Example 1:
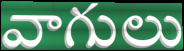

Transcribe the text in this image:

వాగులు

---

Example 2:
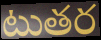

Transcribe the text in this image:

టుతర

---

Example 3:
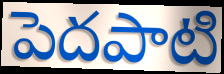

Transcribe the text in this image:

పెదపాటి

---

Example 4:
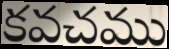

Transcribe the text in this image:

కవచము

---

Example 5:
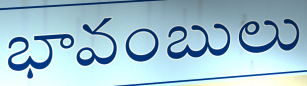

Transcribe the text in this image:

భావంబులు